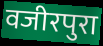
वजीरपुरा